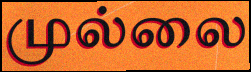
முல்லை